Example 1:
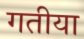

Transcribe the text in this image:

गतीया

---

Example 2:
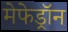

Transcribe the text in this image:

मेफेड्रॉन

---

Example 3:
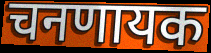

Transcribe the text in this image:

चनणायक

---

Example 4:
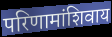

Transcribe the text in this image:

परिणामांशिवाय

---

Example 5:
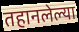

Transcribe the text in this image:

तहानलेल्या